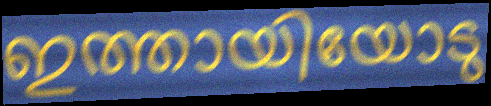
ഇത്തായിയോടു